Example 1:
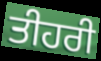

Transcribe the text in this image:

ਤੀਹਰੀ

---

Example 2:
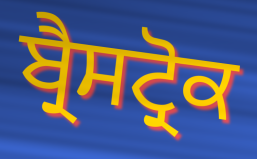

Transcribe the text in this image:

ਬ੍ਰੈਸਟ੍ਰੋਕ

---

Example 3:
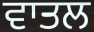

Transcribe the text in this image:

ਵਾਤਲ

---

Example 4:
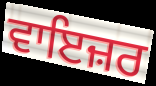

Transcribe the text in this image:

ਵਾਇਜ਼ਰ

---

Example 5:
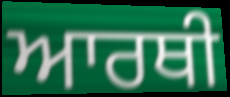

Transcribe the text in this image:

ਆਰਥੀ